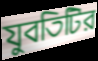
যুবতিটির